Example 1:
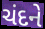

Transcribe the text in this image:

ચંદને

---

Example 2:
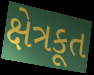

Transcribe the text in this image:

ક્ષેત્રકૂત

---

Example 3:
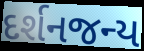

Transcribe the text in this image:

દર્શનજન્ય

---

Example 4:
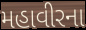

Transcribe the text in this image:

મહાવીરના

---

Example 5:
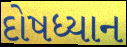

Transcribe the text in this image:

દોષધ્યાન